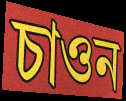
চাওন